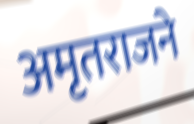
अमृतराजने